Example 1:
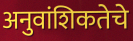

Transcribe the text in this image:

अनुवांशिकतेचे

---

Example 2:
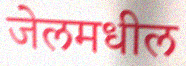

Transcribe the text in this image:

जेलमधील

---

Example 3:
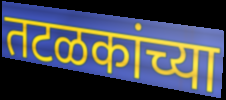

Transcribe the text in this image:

तटळकांच्या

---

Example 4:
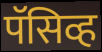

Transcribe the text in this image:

पॅसिव्ह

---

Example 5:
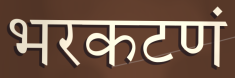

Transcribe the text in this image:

भरकटणं